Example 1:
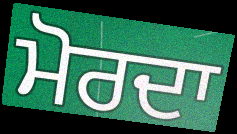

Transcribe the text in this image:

ਮੋਰਦਾ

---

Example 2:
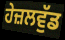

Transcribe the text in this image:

ਹੇਜ਼ਲਵੁੱਡ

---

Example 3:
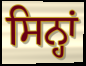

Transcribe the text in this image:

ਸਿਨ੍ਹਾਂ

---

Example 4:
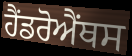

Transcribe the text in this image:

ਹੈਂਡਰੋਐਂਥਸ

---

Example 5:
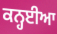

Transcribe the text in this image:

ਕਨ੍ਹਈਆ